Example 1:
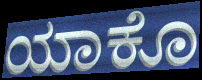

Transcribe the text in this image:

ಯಾಕೊ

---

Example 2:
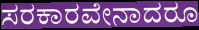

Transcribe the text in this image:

ಸರಕಾರವೇನಾದರೂ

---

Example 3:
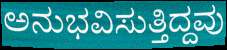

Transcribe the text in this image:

ಅನುಭವಿಸುತ್ತಿದ್ದವು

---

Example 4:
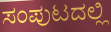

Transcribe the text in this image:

ಸಂಪುಟದಲ್ಲಿ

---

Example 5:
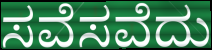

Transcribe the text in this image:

ಸವೆಸವೆದು